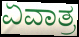
ಏವಾತ್ರ